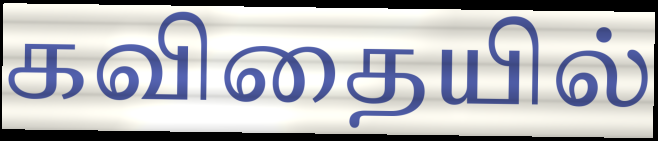
கவிதையில்